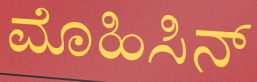
ಮೊಹಿಸಿನ್